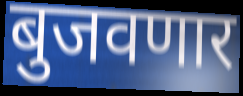
बुजवणार